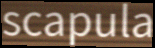
scapula